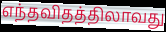
எந்தவிதத்திலாவது